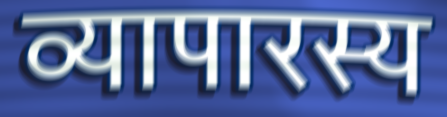
व्यापारस्य